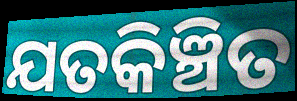
ଯତକିଞ୍ଚିତ